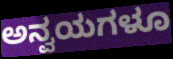
ಅನ್ವಯಗಳೂ